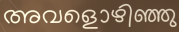
അവളൊഴിഞ്ഞു